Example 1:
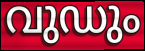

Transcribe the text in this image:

വുഡും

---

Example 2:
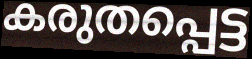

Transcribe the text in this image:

കരുതപ്പെട്ട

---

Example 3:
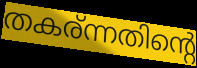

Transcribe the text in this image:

തകര്ന്നതിന്റെ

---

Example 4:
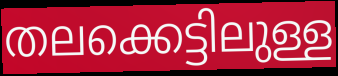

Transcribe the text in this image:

തലക്കെട്ടിലുള്ള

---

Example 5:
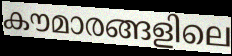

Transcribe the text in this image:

കൗമാരങ്ങളിലെ